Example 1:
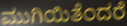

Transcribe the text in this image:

ಮುಗಿಯಿತೆಂದರೆ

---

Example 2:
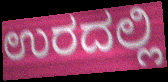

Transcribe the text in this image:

ಉರದಲ್ಲಿ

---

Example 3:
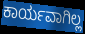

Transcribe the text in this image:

ಕಾರ್ಯವಾಗಿಲ್ಲ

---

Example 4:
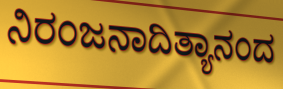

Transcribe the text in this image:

ನಿರಂಜನಾದಿತ್ಯಾನಂದ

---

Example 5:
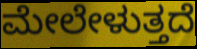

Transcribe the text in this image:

ಮೇಲೇಳುತ್ತದೆ